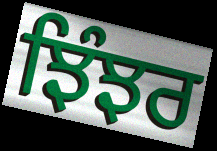
ਝਿੰਝਰ